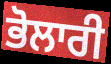
ਭੋਲਾਰੀ